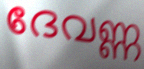
ദേവണ്ണ